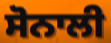
ਸੋਨਾਲੀ